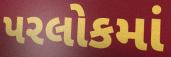
પરલોકમાં